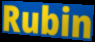
Rubin